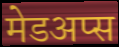
मेडअप्स